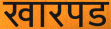
खारपड